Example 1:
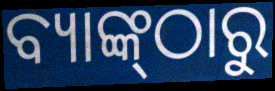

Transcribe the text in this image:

ବ୍ୟାଙ୍କ୍‌ଠାରୁ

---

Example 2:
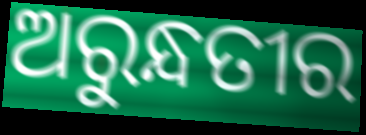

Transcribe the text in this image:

ଅରୁନ୍ଧତୀର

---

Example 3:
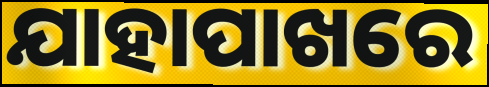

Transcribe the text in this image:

ଯାହାପାଖରେ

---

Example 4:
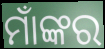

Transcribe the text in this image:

ମାଁଙ୍କର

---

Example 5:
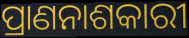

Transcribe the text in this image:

ପ୍ରାଣନାଶକାରୀ